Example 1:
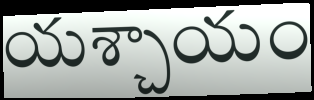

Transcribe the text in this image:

యశ్చాయం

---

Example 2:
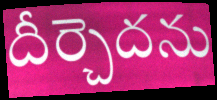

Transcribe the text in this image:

దీర్చెదను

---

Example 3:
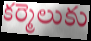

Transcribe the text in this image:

కర్మెలుకు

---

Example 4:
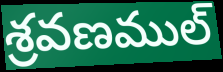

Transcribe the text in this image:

శ్రవణముల్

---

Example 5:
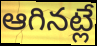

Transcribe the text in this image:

ఆగినట్లే